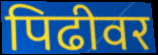
पिढीवर